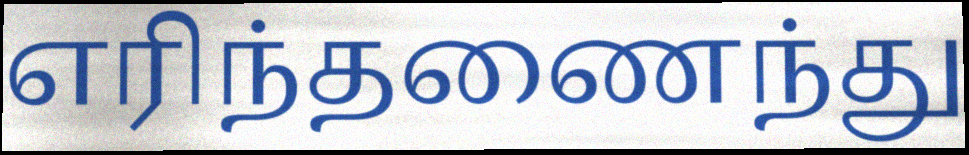
எரிந்தணைந்து